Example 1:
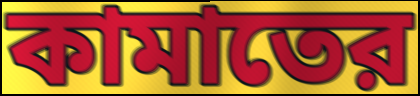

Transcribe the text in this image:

কামাতের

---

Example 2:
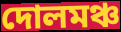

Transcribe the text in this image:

দোলমঞ্চ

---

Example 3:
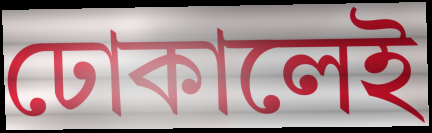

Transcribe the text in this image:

ঢোকালেই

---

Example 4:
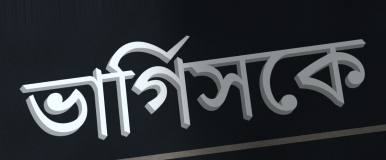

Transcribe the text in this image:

ভার্গিসকে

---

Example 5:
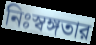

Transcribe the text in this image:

নিঃস্বঙ্গতার